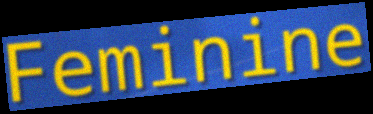
Feminine